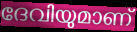
ദേവിയുമാണ്